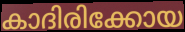
കാദിരിക്കോയ